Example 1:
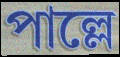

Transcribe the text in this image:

পাল্লে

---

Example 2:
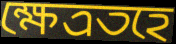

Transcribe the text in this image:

ক্ষেত্ৰতহে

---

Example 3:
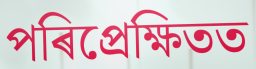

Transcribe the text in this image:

পৰিপ্ৰেক্ষিতত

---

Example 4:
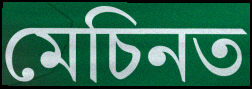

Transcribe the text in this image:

মেচিনত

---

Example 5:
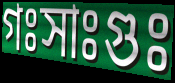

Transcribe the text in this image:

গঃসাঃগুঃ